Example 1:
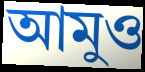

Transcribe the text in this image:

আমুও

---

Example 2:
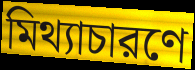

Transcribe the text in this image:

মিথ্যাচারণে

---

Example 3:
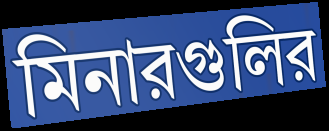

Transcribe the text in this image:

মিনারগুলির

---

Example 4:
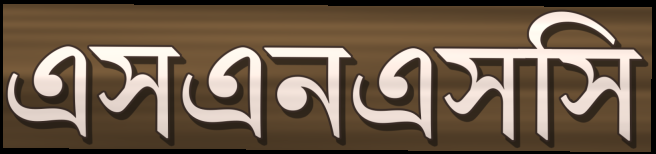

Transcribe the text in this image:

এসএনএসসি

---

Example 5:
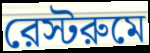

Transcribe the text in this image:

রেস্টরুমে